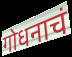
गोधनाचं